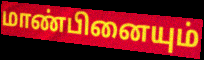
மாண்பினையும்